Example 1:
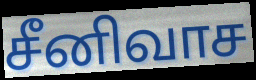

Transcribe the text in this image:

சீனிவாச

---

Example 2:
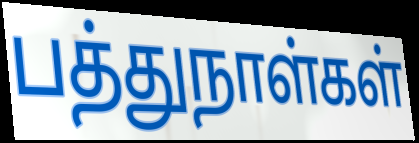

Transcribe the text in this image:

பத்துநாள்கள்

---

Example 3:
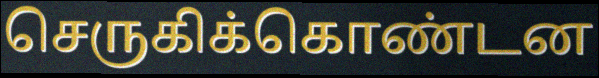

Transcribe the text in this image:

செருகிக்கொண்டன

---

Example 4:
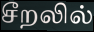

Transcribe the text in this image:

சீறலில்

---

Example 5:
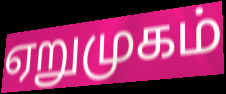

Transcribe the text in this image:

ஏறுமுகம்